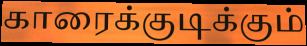
காரைக்குடிக்கும்